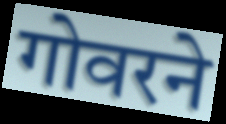
गोवरने